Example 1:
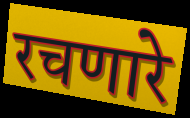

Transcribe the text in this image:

रचणारे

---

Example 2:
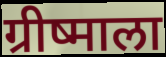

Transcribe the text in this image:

ग्रीष्माला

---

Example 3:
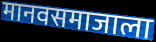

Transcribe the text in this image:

मानवसमाजाला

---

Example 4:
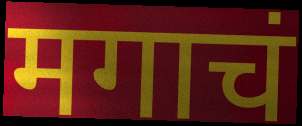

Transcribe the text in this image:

मगाचं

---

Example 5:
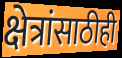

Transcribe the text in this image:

क्षेत्रांसाठीही